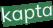
kapta